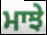
ਮਾਝੇ